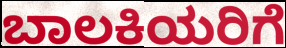
ಬಾಲಕಿಯರಿಗೆ